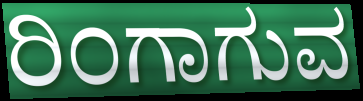
ರಿಂಗಾಗುವ